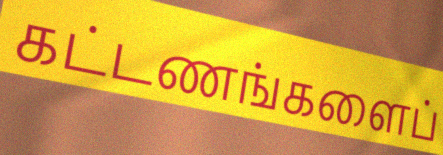
கட்டணங்களைப்